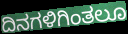
ದಿನಗಳಿಗಿಂತಲೂ